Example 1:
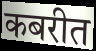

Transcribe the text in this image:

कबरीत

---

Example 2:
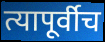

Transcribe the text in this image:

त्यापूर्वीच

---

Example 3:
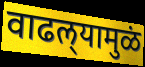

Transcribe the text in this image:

वाढल्यामुळं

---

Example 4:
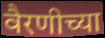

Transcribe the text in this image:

वैरणीच्या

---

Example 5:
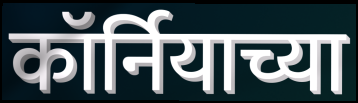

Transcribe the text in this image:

कॉर्नियाच्या